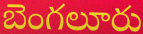
బెంగలూరు